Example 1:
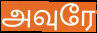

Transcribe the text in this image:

அவுரே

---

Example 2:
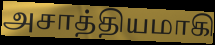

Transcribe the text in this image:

அசாத்தியமாகி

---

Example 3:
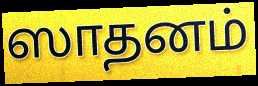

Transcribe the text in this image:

ஸாதனம்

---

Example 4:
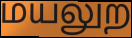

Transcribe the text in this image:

மயலுற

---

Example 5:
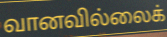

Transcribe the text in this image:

வானவில்லைக்